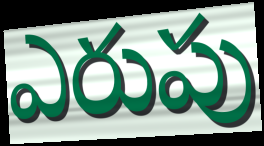
ఎరుపు